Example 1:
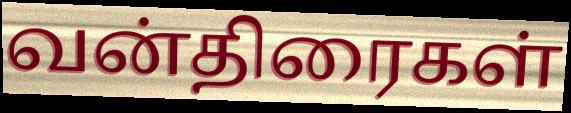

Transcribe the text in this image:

வன்திரைகள்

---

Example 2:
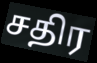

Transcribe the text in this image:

சதிர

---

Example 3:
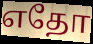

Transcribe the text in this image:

எதோ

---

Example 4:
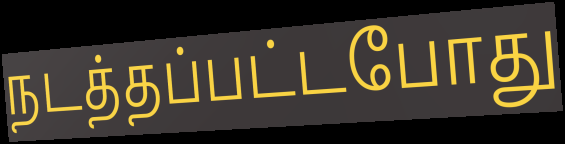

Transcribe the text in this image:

நடத்தப்பட்டபோது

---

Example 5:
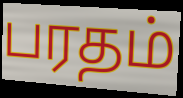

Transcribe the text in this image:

பரதம்